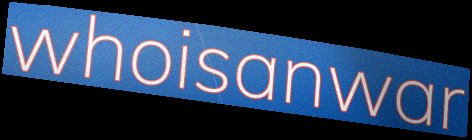
whoisanwar